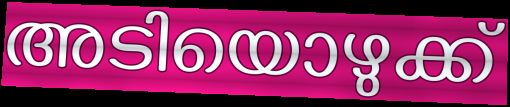
അടിയൊഴുക്ക്